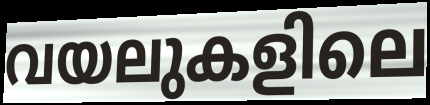
വയലുകളിലെ